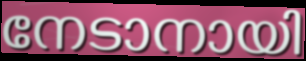
നേടാനായി